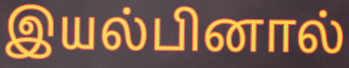
இயல்பினால்